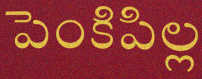
పెంకిపిల్ల